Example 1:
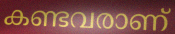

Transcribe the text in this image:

കണ്ടവരാണ്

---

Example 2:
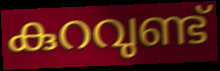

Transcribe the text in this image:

കുറവുണ്ട്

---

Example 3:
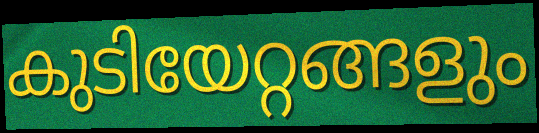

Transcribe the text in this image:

കുടിയേറ്റങ്ങളും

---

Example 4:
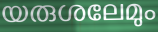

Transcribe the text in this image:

യരുശലേമും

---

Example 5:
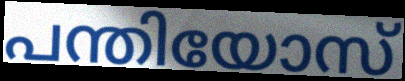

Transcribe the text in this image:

പന്തിയോസ്